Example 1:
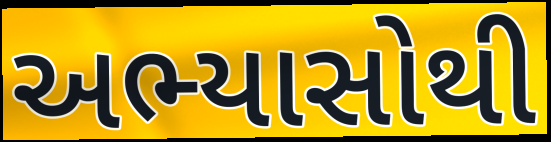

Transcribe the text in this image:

અભ્યાસોથી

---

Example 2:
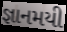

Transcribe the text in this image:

જ્ઞાનમયી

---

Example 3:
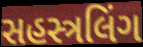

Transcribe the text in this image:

સહસ્ત્રલિંગ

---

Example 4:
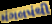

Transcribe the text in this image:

મંગલપંથી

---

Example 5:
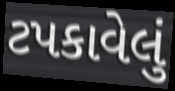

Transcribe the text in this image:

ટપકાવેલું